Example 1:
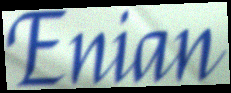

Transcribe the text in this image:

Enian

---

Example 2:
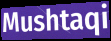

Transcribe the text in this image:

Mushtaqi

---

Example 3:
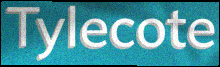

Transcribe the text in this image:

Tylecote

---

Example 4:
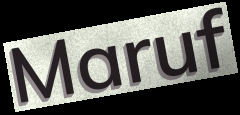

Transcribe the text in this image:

Maruf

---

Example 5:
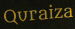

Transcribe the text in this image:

Quraiza